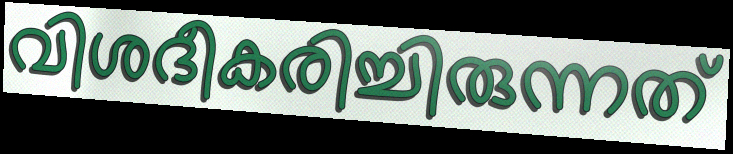
വിശദീകരിച്ചിരുന്നത്